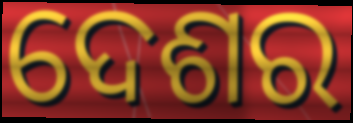
ଦେଶର